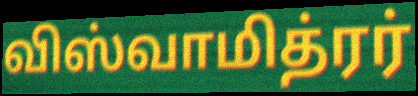
விஸ்வாமித்ரர்